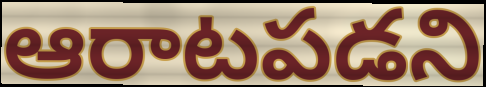
ఆరాటపడని